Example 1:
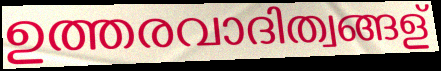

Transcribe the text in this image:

ഉത്തരവാദിത്വങ്ങള്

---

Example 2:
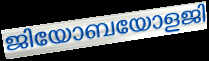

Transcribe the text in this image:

ജിയോബയോളജി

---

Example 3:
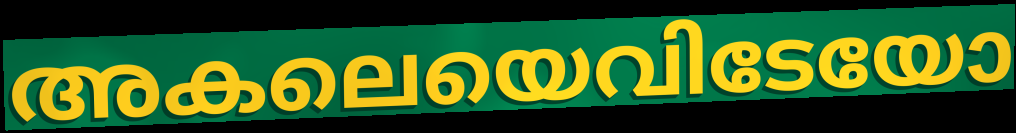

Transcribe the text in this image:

അകലെയെവിടേയോ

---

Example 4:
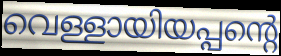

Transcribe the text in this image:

വെള്ളായിയപ്പന്റെ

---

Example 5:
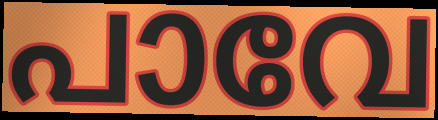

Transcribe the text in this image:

പാവേ